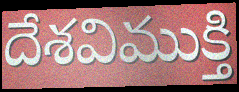
దేశవిముక్తి